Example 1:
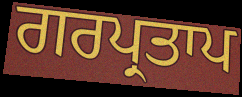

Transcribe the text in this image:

ਗਰਪ੍ਰਤਾਪ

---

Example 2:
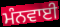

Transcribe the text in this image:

ਮੰਨਵਾਈ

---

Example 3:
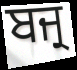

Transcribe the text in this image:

ਬਜ੍ਰ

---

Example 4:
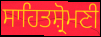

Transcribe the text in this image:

ਸਾਹਿਤਸ਼੍ਰੋਮਣੀ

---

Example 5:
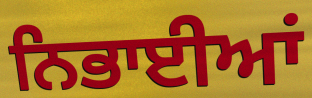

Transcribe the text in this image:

ਨਿਭਾਈਆਂ